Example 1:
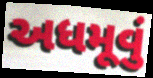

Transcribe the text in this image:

અધમૂવું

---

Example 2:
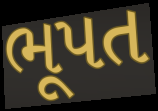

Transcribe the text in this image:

ભૂપત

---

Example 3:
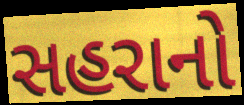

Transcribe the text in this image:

સહરાનો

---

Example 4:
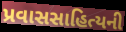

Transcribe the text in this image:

પ્રવાસસાહિત્યની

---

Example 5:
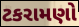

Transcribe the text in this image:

ટકરામણો